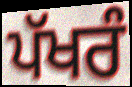
ਪੱਖਰੰ